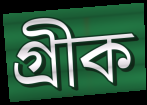
গ্ৰীক